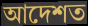
আদেশত